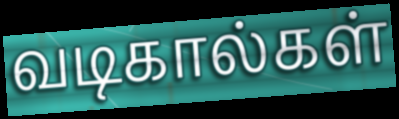
வடிகால்கள்